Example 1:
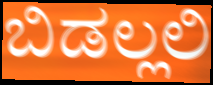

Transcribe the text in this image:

ಬಿಡಲ್ಲಲಿ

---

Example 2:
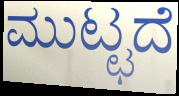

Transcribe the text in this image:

ಮುಟ್ಟದೆ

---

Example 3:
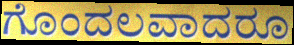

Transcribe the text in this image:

ಗೊಂದಲವಾದರೂ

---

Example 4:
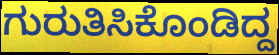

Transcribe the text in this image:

ಗುರುತಿಸಿಕೊಂಡಿದ್ದ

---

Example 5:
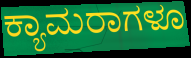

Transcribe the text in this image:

ಕ್ಯಾಮರಾಗಳೂ